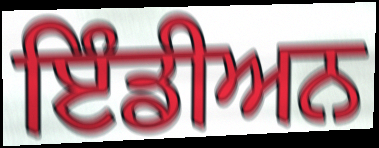
ਇੰਡੀਅਨ